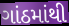
ગાંઠમાંથી